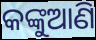
କଙ୍କୁଆଣି